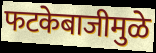
फटकेबाजीमुळे